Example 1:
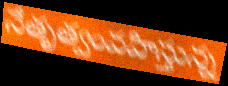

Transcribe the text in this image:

నేతృత్వంవహిస్తున్న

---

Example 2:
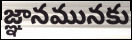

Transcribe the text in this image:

జ్ఞానమునకు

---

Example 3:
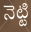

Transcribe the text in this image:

నెట్టి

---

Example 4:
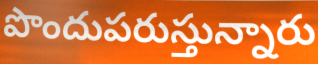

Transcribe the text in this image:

పొందుపరుస్తున్నారు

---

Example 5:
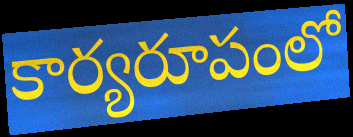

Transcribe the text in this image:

కార్యరూపంలో